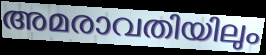
അമരാവതിയിലും